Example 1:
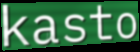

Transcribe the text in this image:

kasto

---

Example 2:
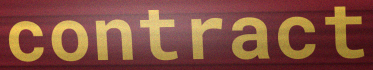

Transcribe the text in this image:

contract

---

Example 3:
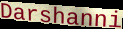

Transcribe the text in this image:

Darshanni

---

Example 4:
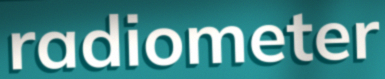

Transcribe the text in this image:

radiometer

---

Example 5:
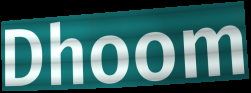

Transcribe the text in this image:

Dhoom